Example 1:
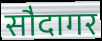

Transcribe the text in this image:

सौदागर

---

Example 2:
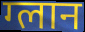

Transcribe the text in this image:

ग्लान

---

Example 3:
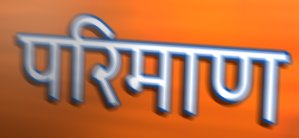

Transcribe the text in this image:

परिमाण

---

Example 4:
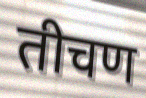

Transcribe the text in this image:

तीचण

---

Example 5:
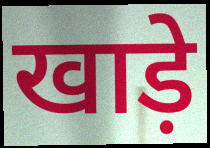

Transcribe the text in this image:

खाड़े